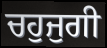
ਚਹੁਜੁਗੀ